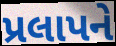
પ્રલાપને